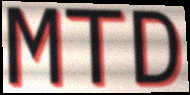
MTD